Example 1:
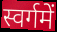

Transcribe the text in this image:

स्वर्गमें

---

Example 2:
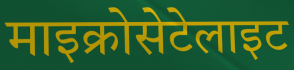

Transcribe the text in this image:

माइक्रोसेटेलाइट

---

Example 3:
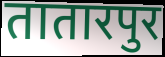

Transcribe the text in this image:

तातारपुर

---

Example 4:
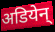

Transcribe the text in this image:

अडियेन्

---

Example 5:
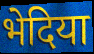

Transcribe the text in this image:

भेदिया